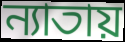
ন্যাতায়